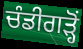
ਚੰਡੀਗੜ੍ਹੋਂ